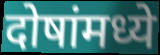
दोषांमध्ये